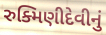
રુક્મિણીદેવીનું